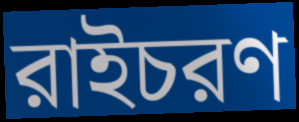
রাইচরণ